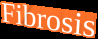
Fibrosis